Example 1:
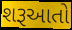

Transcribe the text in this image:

શરૂઆતો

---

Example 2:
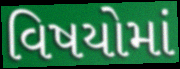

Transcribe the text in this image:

વિષયોમાં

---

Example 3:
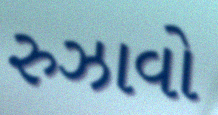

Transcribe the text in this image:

રુઝાવો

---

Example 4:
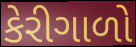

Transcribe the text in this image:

કેરીગાળો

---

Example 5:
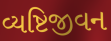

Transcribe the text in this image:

વ્યષ્ટિજીવન